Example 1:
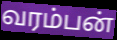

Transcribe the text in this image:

வரம்பன்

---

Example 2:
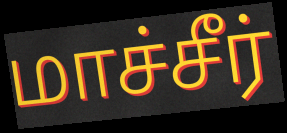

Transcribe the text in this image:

மாச்சீர்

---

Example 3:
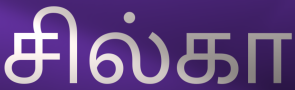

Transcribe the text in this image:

சில்கா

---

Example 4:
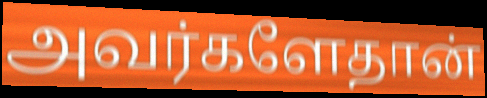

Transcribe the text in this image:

அவர்களேதான்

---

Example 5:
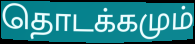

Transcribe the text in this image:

தொடக்கமும்